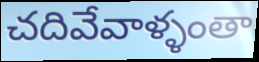
చదివేవాళ్ళంతా